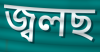
জ্বলছ